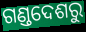
ଗଣ୍ଡଦେଶରୁ